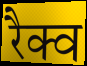
रैक्व